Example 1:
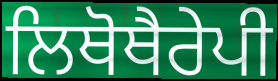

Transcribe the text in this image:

ਲਿਥੋਥੈਰੇਪੀ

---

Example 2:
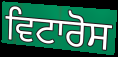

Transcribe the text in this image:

ਵਿਟਾਰੋਸ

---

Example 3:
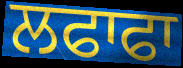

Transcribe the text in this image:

ਲਫਾਫਾ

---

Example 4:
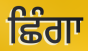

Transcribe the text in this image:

ਛਿੰਗਾ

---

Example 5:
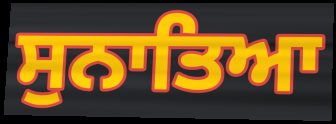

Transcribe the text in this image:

ਸੁਨਾਤਿਆ